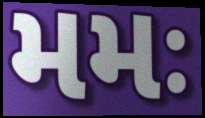
મમઃ